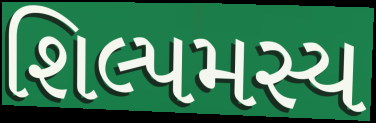
શિલ્પમસ્ય